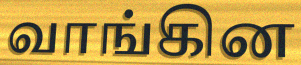
வாங்கின